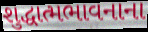
શુદ્ધાત્મભાવનાના